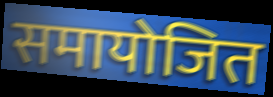
समायोजित